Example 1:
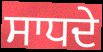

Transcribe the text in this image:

ਸਾਧਦੇ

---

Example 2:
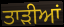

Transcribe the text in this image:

ਤਾੜੀਆਂ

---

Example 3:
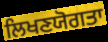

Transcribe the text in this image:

ਲਿਖਣਯੋਗਤਾ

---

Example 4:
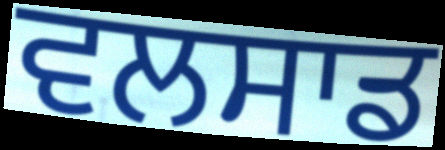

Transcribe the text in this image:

ਵਲਸਾਡ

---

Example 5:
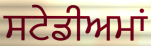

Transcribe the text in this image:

ਸਟੇਡੀਅਮਾਂ